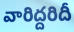
వారిద్దరిదీ